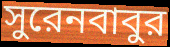
সুরেনবাবুর